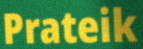
Prateik